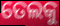
ତେଲକୁ